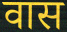
वास